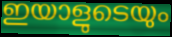
ഇയാളുടെയും